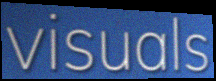
visuals